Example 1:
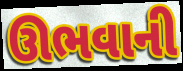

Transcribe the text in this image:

ઊભવાની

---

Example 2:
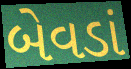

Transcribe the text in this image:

બેવડાં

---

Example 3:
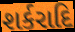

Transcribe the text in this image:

શર્કરાદિ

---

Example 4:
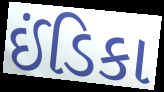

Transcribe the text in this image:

ઈંડિકા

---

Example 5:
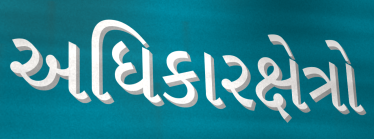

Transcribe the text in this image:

અધિકારક્ષેત્રો